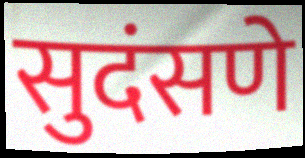
सुदंसणे